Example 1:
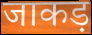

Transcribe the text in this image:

जाकड़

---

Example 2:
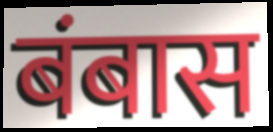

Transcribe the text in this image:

बंबास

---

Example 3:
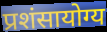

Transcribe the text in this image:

प्रशंसायोग्य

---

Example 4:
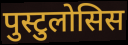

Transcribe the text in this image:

पुस्टुलोसिस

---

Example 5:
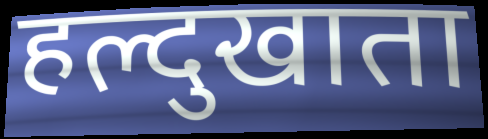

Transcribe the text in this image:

हल्दुखाता